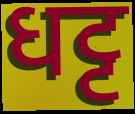
धट्ट